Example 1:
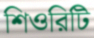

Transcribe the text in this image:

শিওরিটি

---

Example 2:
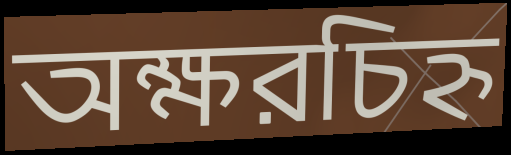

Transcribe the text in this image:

অক্ষরচিহ্ন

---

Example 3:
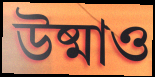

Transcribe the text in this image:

উষ্মাও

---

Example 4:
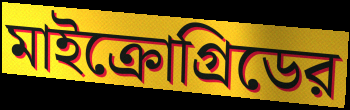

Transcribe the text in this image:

মাইক্রোগ্রিডের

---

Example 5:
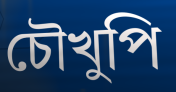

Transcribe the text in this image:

চৌখুপি